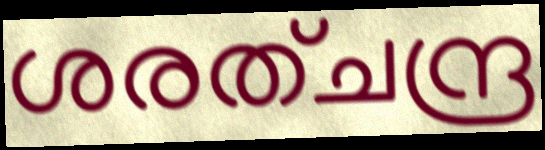
ശരത്ചന്ദ്ര